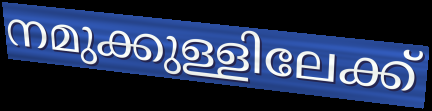
നമുക്കുള്ളിലേക്ക്